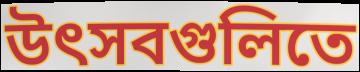
উৎসবগুলিতে